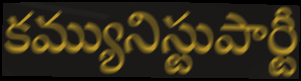
కమ్యునిస్టుపార్టీ